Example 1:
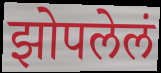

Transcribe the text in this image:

झोपलेलं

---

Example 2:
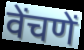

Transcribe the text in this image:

वेंचणें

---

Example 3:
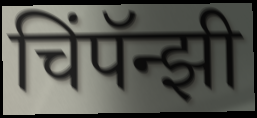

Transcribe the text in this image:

चिंपॅन्झी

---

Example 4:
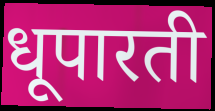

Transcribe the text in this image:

धूपारती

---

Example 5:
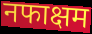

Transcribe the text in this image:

नफाक्षम